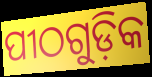
ପୀଠଗୁଡ଼ିକ